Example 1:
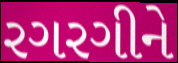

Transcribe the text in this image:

રગરગીને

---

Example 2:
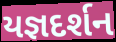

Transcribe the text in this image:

યજ્ઞદર્શન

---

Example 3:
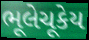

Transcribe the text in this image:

ભૂલેચૂકેય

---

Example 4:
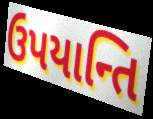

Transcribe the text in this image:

ઉપયાન્તિ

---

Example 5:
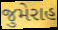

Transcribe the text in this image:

જુમેરાહ